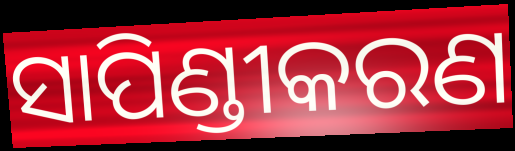
ସାପିଣ୍ଡୀକରଣ